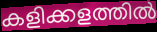
കളിക്കളത്തിൽ